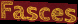
Fasces